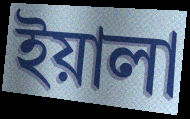
ইয়ালা